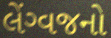
લેંગ્વજનો